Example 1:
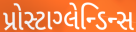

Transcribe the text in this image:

પ્રોસ્ટાગ્લેન્ડિન્સ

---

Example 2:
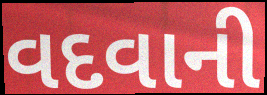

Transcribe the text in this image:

વદવાની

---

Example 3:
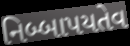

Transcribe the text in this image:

નિબ્બાપયતેવ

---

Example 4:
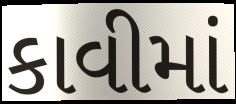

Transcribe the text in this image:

કાવીમાં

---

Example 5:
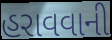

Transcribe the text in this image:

હરાવવાની